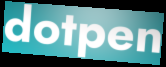
dotpen